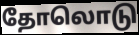
தோலொடு